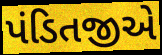
પંડિતજીએ